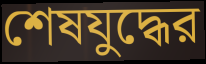
শেষযুদ্ধের